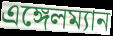
এঙ্গেলম্যান